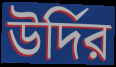
উর্দির